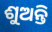
ଶୁଅନ୍ତି